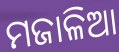
ମଜାଳିଆ